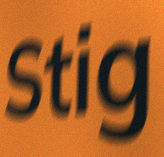
Stig